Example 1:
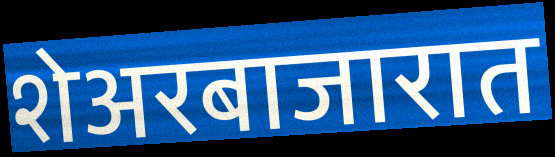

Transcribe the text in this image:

शेअरबाजारात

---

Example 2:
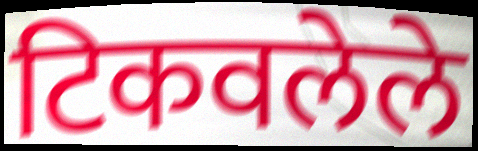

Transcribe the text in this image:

टिकवलेले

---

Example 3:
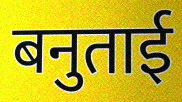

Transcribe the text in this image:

बनुताई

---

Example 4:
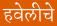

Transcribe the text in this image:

हवेलीचे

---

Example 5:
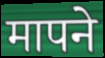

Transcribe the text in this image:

मापने